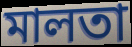
মালতা